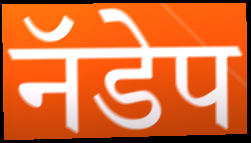
नॅडेप